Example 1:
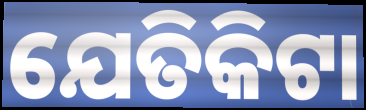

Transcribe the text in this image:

ଯେତିକିଟା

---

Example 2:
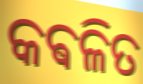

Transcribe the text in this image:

କଵଳିତ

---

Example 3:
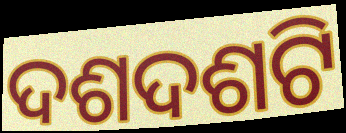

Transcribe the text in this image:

ଦଶଦଶଟି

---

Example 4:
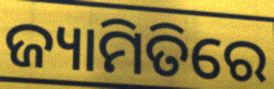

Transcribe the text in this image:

ଜ୍ୟାମିତିରେ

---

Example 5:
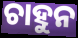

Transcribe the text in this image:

ଚାହୁନ